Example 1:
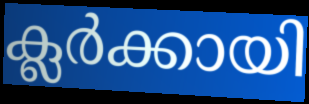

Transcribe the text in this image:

ക്ലർക്കായി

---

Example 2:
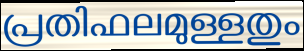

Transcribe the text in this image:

പ്രതിഫലമുള്ളതും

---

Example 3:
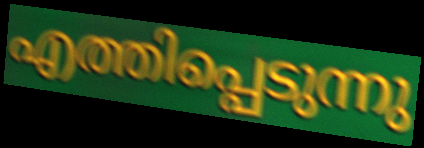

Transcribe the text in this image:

എത്തിപ്പെടുന്നു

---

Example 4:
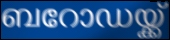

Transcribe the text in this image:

ബറോഡയ്ക്ക്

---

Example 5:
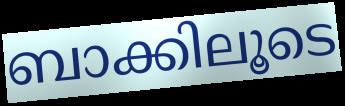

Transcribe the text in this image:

ബാക്കിലൂടെ